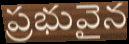
ప్రభువైన